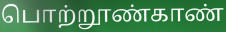
பொற்றூண்காண்